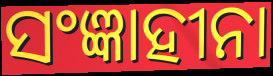
ସଂଜ୍ଞାହୀନା